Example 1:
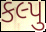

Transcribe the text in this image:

કલ્પુ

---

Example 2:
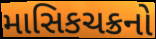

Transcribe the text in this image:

માસિકચક્રનો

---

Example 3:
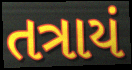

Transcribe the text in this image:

તત્રાયં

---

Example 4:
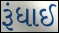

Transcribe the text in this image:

રૂંધાઈ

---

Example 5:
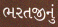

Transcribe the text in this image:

ભરતજીનું